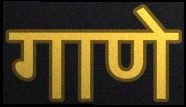
गाणे